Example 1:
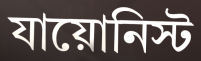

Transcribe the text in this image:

যায়োনিস্ট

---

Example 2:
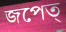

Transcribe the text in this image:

জপেত্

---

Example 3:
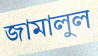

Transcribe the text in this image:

জামালুল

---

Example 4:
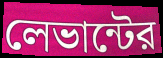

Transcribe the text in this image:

লেভান্টের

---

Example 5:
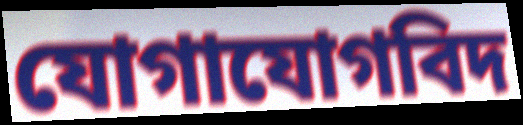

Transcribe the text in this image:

যোগাযোগবিদ